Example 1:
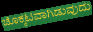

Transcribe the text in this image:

ಚೊಕ್ಕಟವಾಗಿಡುವುದು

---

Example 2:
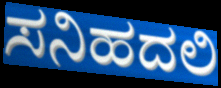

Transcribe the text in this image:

ಸನಿಹದಲಿ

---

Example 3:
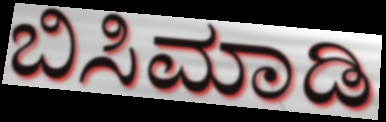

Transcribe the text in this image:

ಬಿಸಿಮಾಡಿ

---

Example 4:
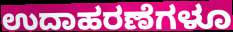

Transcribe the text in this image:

ಉದಾಹರಣೆಗಳೂ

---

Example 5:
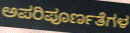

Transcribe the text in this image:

ಅಪರಿಪೂರ್ಣತೆಗಳ